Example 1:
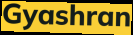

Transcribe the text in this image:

Gyashran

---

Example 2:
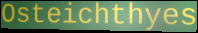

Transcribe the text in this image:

Osteichthyes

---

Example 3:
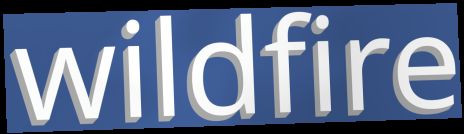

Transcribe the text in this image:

wildfire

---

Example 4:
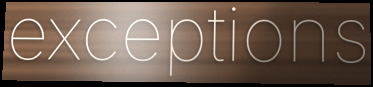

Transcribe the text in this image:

exceptions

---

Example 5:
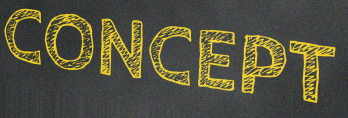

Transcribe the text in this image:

CONCEPT